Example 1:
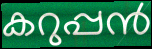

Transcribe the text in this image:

കറുപ്പൻ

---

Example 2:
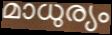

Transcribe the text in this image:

മാധുര്യം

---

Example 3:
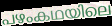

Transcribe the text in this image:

പഴംകഥയിലെ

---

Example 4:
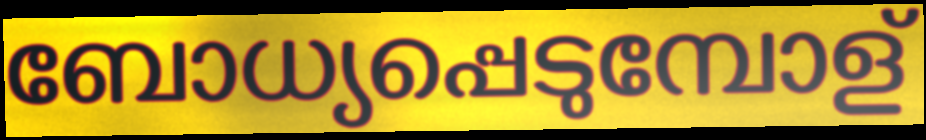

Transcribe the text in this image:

ബോധ്യപ്പെടുമ്പോള്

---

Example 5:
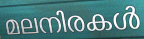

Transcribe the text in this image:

മലനിരകൾ